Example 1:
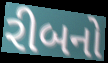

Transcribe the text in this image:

રીબનો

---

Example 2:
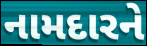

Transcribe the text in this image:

નામદારને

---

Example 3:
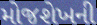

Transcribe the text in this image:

મોજશેખની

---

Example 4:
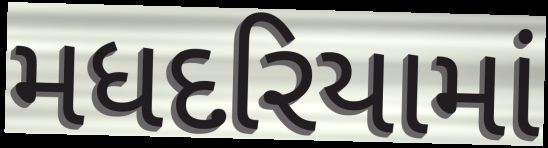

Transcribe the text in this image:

મધદરિયામાં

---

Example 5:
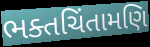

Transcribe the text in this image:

ભક્તચિંતામણિ